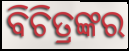
ବିଚିତ୍ରଙ୍କର